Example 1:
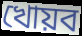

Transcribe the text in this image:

খোয়ব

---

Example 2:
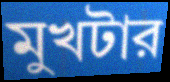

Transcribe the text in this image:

মুখটার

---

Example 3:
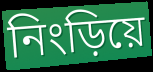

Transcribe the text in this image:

নিংড়িয়ে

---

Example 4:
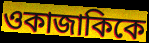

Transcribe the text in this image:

ওকাজাকিকে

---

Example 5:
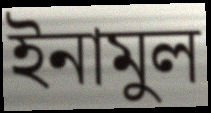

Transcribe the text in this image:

ইনামুল